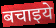
बचाइये